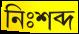
নিঃশব্দ